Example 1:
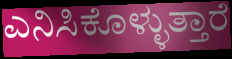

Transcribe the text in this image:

ಎನಿಸಿಕೊಳ್ಳುತ್ತಾರೆ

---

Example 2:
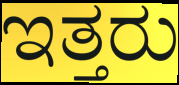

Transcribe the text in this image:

ಇತ್ತರು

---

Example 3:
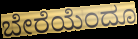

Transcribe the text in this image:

ಬೇರೆಯೆಂದೂ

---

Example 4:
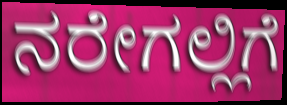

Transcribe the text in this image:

ನರೇಗಲ್ಲಿಗೆ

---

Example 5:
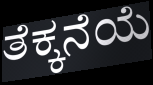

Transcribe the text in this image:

ತೆಕ್ಕನೆಯೆ